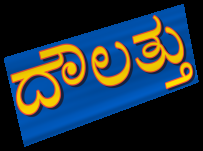
ದೌಲತ್ತು